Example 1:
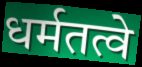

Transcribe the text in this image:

धर्मतत्वे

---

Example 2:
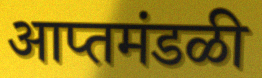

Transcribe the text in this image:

आप्तमंडळी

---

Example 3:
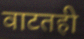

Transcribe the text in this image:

वाटतही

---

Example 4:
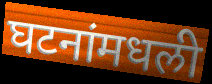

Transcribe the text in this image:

घटनांमधली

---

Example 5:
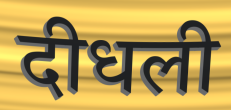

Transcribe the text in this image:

दीधली